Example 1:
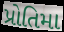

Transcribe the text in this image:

પ્રોતિમા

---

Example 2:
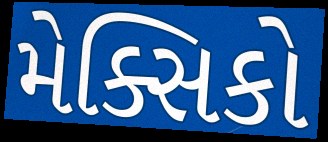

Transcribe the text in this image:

મેક્સિકો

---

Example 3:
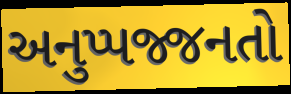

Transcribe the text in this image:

અનુપ્પજ્જનતો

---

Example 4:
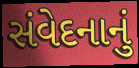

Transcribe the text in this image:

સંવેદનાનું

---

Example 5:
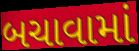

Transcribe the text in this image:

બચાવામાં